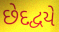
છેદદ્વયે